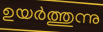
ഉയർത്തുന്നു